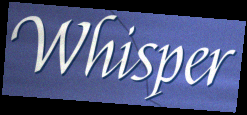
Whisper